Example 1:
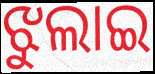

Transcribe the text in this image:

ଝୁଲାଇ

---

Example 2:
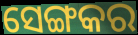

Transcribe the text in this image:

ସେଙ୍ଗକର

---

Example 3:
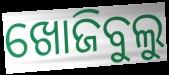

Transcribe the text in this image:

ଖୋଜିବୁଲୁ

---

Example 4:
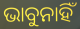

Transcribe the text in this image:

ଭାବୁନାହିଁ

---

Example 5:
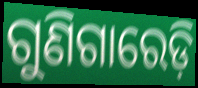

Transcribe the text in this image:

ଗୁଣିଗାରେଡ଼ି